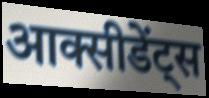
आक्सीडेंट्स